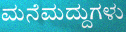
ಮನೆಮದ್ದುಗಳು